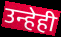
उन्हेही